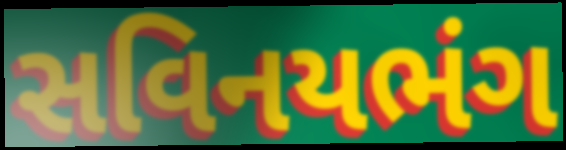
સવિનયભંગ